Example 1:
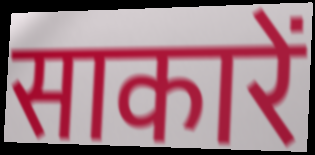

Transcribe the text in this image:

साकारें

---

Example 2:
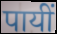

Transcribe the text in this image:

पायीं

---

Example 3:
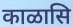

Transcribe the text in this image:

काळासि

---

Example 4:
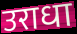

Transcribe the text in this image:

उराधा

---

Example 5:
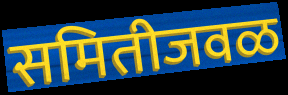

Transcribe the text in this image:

समितीजवळ